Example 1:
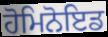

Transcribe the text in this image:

ਹੋਮਿਨੋਇਡ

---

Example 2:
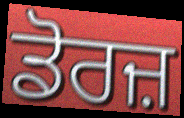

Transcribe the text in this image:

ਡੋਰਜ਼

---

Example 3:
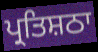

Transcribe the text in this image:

ਪ੍ਰਤਿਸ਼ਠਾ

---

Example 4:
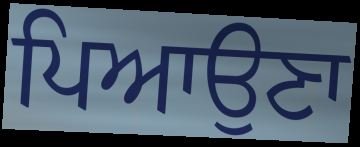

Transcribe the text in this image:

ਪਿਆਉਣਾ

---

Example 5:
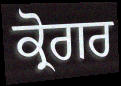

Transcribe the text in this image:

ਕ੍ਰੋਗਰ